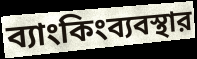
ব্যাংকিংব্যবস্থার